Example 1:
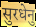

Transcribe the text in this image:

सुरधेनु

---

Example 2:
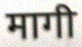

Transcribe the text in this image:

मागी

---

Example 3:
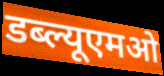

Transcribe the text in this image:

डब्ल्यूएमओ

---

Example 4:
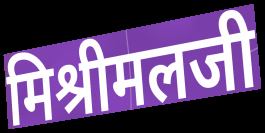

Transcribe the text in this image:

मिश्रीमलजी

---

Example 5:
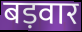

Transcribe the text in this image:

बड़वार